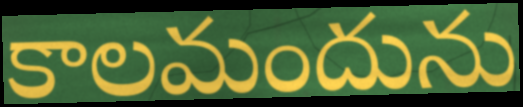
కాలమందును